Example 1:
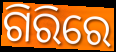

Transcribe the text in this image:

ଗିରିରେ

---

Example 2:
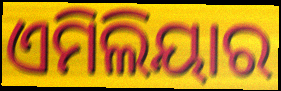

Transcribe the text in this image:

ଏମିଲିୟାର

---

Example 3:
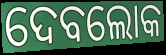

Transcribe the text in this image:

ଦେବଲୋକ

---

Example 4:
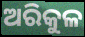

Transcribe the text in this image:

ଅରିକୁଳ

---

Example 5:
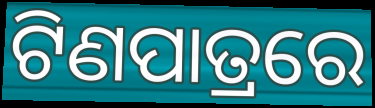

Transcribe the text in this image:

ଟିଣପାତ୍ରରେ